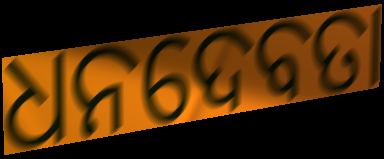
ଧନଦେବତା